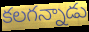
కలగన్నాడు